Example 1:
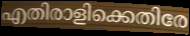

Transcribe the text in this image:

എതിരാളിക്കെതിരേ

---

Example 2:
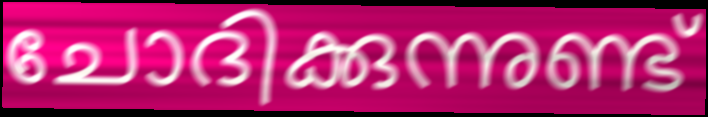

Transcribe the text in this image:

ചോദിക്കുന്നുണ്ട്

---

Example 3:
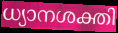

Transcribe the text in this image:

ധ്യാനശക്തി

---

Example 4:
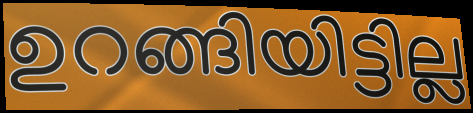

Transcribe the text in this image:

ഉറങ്ങിയിട്ടില്ല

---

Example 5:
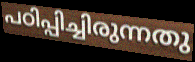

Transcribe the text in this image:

പഠിപ്പിച്ചിരുന്നതു